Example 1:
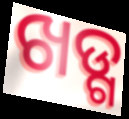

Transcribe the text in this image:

ଖଡ୍ଗ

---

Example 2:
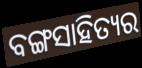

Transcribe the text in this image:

ବଙ୍ଗସାହିତ୍ୟର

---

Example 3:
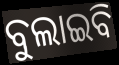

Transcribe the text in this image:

ବୁଲାଇବି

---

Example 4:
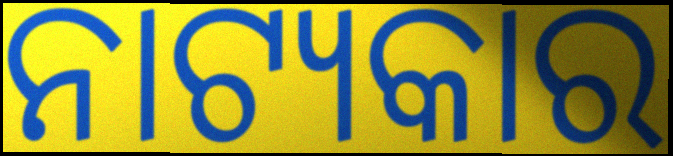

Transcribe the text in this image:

ନାଟ୍ଯକାର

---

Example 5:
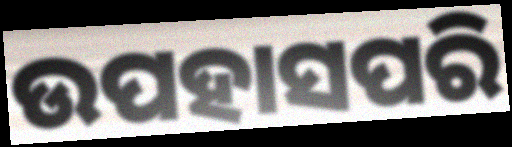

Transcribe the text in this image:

ଉପହାସପରି